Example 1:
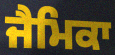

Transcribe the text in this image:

ਜੈਮਿਕਾ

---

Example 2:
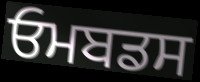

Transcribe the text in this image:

ਓਮਬਡਸ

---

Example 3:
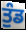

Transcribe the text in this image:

ਤੁੰਡ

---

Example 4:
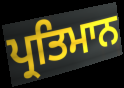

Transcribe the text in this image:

ਪ੍ਰਤਿਮਾਨ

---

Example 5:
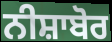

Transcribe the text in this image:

ਨੀਸ਼ਾਬੋਰ